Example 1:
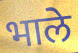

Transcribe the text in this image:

भाले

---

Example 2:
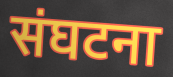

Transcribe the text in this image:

संघटना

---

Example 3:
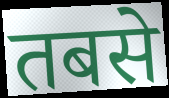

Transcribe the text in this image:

तबसे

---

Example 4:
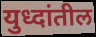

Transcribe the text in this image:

युध्दांतील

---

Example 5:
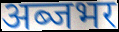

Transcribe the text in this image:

अब्जभर